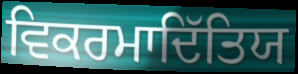
ਵਿਕਰਮਾਦਿੱਤਿਯ